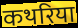
कथरिया